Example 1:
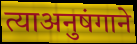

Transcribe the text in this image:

त्याअनुषंगाने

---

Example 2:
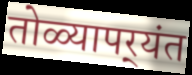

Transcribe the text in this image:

तोळ्यापर्यंत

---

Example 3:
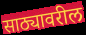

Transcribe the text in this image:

साठ्यावरील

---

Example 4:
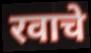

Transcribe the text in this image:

रवाचे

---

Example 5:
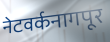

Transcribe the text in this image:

नेटवर्कनागपूर